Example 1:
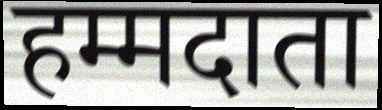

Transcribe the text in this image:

हम्मदाता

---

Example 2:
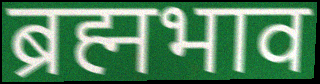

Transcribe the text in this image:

ब्रह्मभाव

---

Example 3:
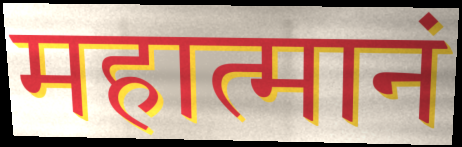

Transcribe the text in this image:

महात्मानं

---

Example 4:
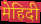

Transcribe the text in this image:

मेहिदी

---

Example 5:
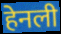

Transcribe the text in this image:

हेनली